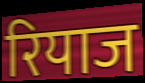
रियाज